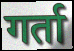
गर्ता